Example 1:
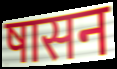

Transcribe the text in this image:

षासन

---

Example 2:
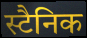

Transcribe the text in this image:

स्टैनिक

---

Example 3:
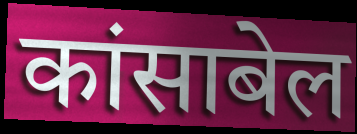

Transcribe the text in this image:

कांसाबेल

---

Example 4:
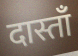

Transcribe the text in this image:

दास्ताँ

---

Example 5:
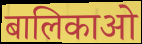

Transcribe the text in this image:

बालिकाओ